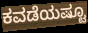
ಕವಡೆಯಷ್ಟೂ